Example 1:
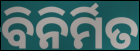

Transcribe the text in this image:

ବିନିର୍ମିତ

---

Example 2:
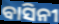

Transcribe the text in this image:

ବାସିନୀ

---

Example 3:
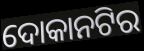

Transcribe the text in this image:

ଦୋକାନଟିର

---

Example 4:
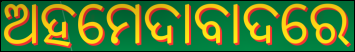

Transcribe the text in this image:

ଅହମେଦାବାଦରେ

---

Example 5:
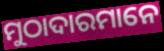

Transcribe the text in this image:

ମୁଠାଦାରମାନେ